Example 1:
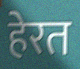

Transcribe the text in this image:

हेरत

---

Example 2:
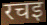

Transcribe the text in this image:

रचइ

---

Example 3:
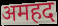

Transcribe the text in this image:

अमहद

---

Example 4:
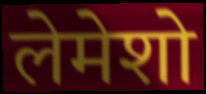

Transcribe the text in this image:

लेमेशो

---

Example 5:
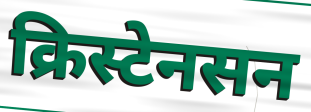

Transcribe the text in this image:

क्रिस्टेनसन